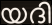
യദി